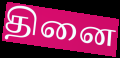
தினை